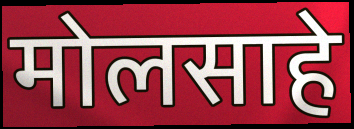
मोलसाहे